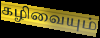
கழிவையும்